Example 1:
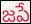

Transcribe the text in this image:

జపే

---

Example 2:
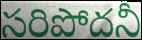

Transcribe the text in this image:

సరిపోదనీ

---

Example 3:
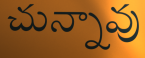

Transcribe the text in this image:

చున్నావు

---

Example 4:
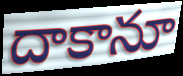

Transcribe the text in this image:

దాకానూ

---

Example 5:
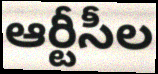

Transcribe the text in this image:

ఆర్టీసీల